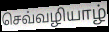
செவ்வழியாழ்